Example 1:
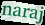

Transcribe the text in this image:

naraj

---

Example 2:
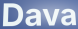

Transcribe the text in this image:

Dava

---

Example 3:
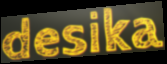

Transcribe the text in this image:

desika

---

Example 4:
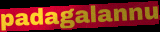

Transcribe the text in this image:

padagalannu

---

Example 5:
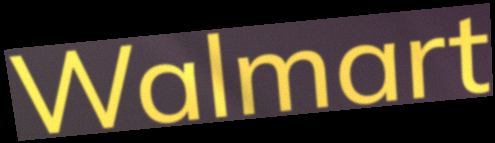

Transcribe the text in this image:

Walmart